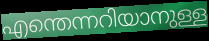
എന്തെന്നറിയാനുള്ള